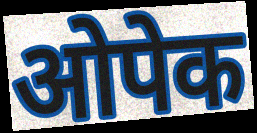
ओपेक